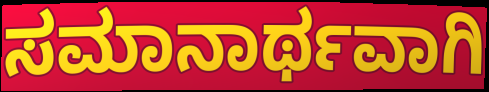
ಸಮಾನಾರ್ಥವಾಗಿ